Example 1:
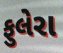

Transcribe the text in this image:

ફુલેરા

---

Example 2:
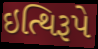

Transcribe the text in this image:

ઇત્થિરૂપે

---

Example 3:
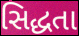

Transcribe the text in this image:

સિદ્ધતા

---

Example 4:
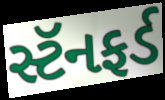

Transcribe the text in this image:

સ્ટૅનફર્ડ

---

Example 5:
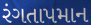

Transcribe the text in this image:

રંગતાપમાન